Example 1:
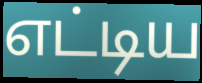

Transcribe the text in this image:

எட்டிய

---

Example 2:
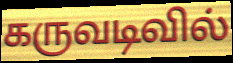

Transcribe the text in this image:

கருவடிவில்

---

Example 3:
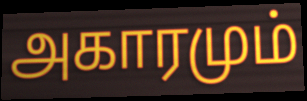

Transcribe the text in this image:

அகாரமும்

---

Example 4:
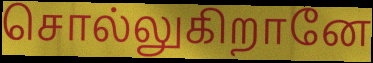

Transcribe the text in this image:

சொல்லுகிறானே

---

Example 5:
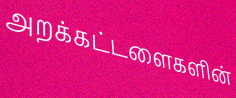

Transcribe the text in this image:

அறக்கட்டளைகளின்